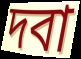
দবা